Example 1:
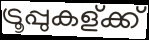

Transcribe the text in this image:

ട്രൂപ്പുകള്ക്ക്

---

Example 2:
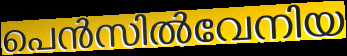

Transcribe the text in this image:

പെൻസിൽവേനിയ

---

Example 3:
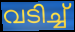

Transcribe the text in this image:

വടിച്ച്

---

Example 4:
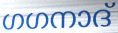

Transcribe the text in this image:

ഗഗനാദ്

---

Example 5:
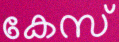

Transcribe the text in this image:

കേസ്